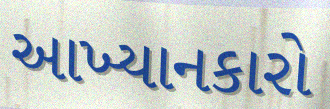
આખ્યાનકારો